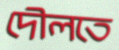
দৌলতে